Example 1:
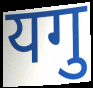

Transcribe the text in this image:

यगु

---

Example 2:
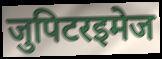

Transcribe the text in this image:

जुपिटरइमेज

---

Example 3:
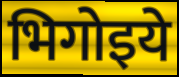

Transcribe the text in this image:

भिगोइये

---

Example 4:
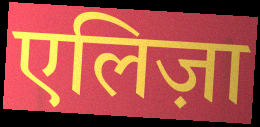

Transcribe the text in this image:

एलिज़ा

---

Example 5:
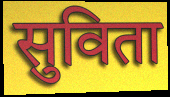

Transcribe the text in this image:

सुविता